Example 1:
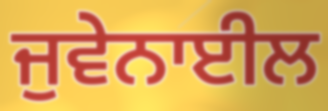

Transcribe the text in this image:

ਜੁਵੇਨਾਈਲ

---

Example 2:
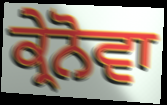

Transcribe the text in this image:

ਕ੍ਰੇਨੋਵਾ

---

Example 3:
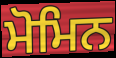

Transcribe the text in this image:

ਮੋਮਿਨ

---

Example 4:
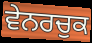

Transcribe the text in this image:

ਵੇਨਰਚੁਕ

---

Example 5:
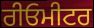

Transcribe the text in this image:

ਰੀਓਮੀਟਰ